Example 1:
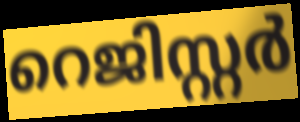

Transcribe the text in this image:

റെജിസ്റ്റർ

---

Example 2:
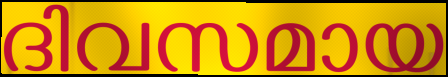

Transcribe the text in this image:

ദിവസമായ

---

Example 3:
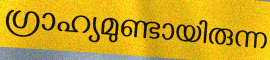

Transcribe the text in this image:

ഗ്രാഹ്യമുണ്ടായിരുന്ന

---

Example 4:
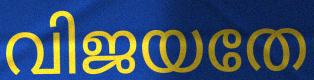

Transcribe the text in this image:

വിജയതേ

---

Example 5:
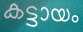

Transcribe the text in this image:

കട്ടായം